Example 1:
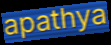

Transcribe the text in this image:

apathya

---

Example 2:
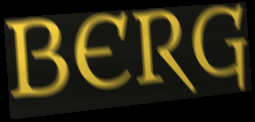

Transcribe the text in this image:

BERG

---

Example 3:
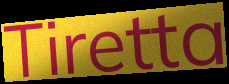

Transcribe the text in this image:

Tiretta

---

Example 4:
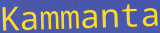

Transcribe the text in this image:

Kammanta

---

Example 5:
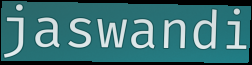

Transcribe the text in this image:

jaswandi